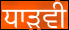
ਧਾੜਵੀ